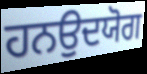
ਹਨਉਦਯੋਗ